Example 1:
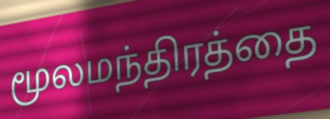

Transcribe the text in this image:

மூலமந்திரத்தை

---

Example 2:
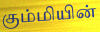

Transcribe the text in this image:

கும்மியின்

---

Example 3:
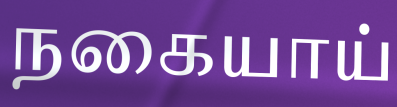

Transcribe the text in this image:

நகையாய்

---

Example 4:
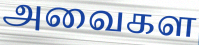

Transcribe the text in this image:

அவைகள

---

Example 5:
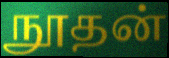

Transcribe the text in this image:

நூதன்